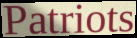
Patriots